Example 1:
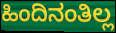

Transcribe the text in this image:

ಹಿಂದಿನಂತಿಲ್ಲ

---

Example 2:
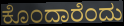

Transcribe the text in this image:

ಕೊಂದಾರೆಂದು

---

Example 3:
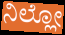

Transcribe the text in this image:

ನಿಲ್ಲೋ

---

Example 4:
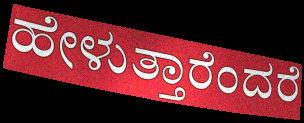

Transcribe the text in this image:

ಹೇಳುತ್ತಾರೆಂದರೆ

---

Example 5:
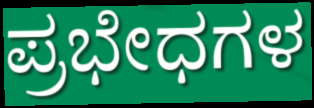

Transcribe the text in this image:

ಪ್ರಭೇಧಗಳ